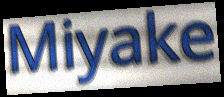
Miyake